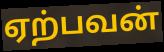
ஏற்பவன்